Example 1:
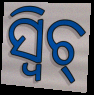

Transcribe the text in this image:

ସ୍ଵିଚ୍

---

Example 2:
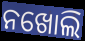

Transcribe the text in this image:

ନଖୋଲି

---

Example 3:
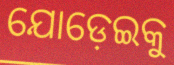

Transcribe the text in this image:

ଯୋଡ଼େଇକୁ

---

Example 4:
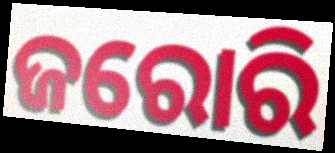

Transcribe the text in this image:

ଜରୋରି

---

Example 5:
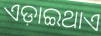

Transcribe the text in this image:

ଏଡ଼ାଇଥାଏ